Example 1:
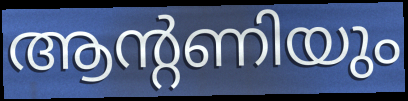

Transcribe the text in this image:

ആന്റണിയും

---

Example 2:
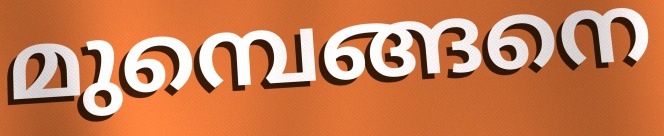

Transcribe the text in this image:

മുമ്പെങ്ങനെ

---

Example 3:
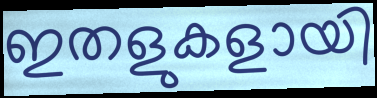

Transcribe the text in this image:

ഇതളുകളായി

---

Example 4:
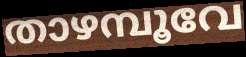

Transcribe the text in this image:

താഴമ്പൂവേ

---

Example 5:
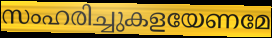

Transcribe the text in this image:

സംഹരിച്ചുകളയേണമേ